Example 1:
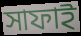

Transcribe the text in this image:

সাফাই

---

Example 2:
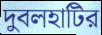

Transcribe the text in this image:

দুবলহাটির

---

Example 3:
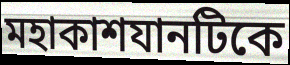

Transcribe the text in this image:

মহাকাশযানটিকে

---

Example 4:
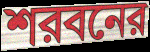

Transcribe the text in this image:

শরবনের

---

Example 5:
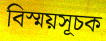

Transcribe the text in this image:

বিস্ময়সূচক